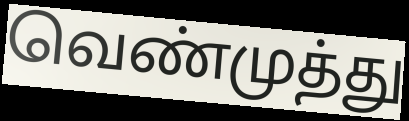
வெண்முத்து